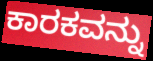
ಕಾರಕವನ್ನು